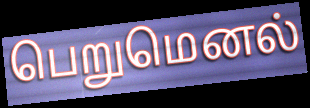
பெறுமெனல்